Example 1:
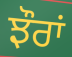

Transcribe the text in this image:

ਝੌਰਾਂ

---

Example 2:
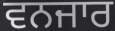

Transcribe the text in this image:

ਵਨਜਾਰ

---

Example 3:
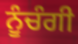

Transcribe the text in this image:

ਨੂੰਚੰਗੀ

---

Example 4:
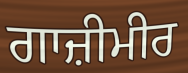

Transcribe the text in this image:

ਗਾਜ਼ੀਮੀਰ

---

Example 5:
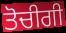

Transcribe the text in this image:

ਤੋਚੀਗੀ